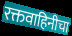
रक्तवाहिनीचा